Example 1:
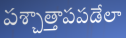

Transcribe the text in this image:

పశ్చాత్తాపపడేలా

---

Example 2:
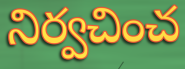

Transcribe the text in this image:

నిర్వచించ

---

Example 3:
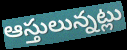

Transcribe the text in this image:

ఆస్తులున్నట్లు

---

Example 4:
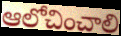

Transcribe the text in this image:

ఆలోచించాలి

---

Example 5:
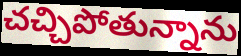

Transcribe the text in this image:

చచ్చిపోతున్నాను